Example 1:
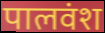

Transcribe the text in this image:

पालवंश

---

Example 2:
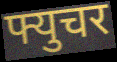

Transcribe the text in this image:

फ्युचर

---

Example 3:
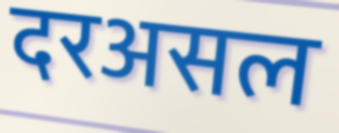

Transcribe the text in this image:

दरअसल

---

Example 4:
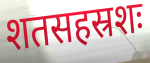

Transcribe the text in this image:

शतसहस्रशः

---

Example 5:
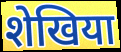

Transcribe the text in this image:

शेखिया